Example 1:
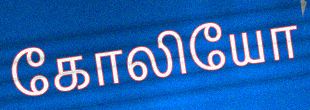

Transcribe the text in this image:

கோலியோ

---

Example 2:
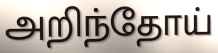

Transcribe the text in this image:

அறிந்தோய்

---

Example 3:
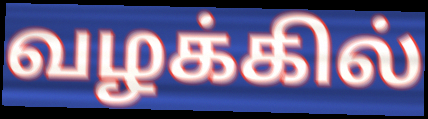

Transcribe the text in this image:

வழக்கில்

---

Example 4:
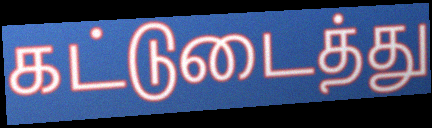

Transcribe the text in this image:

கட்டுடைத்து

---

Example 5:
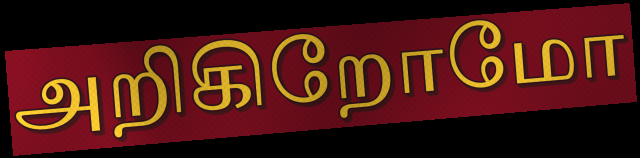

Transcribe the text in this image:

அறிகிறோமோ